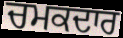
ਚਮਕਦਾਰ